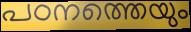
പഠനത്തെയും